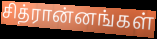
சித்ரான்னங்கள்